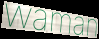
waman